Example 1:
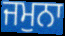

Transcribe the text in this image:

ਜਮੁਨਾ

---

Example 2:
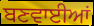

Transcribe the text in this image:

ਬਣਵਾਈਆਂ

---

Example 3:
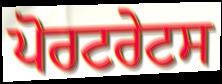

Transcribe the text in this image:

ਪੋਰਟਰੇਟਸ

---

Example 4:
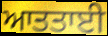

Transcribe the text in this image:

ਆਤਤਾਈ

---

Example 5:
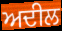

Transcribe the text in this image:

ਅਦੀਲ